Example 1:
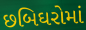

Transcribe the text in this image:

છબિઘરોમાં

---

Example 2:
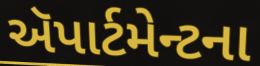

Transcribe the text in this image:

ઍપાર્ટમેન્ટના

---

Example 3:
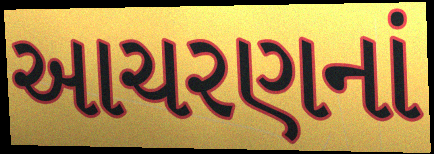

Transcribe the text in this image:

આચરણનાં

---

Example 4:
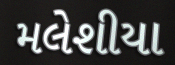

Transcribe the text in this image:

મલેશીયા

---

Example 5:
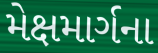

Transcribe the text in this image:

મેક્ષમાર્ગના